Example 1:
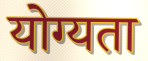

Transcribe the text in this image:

योग्यता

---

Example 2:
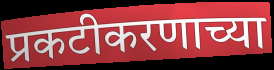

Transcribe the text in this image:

प्रकटीकरणाच्या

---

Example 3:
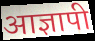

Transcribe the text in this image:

आज्ञापी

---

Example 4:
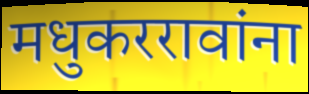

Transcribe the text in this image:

मधुकररावांना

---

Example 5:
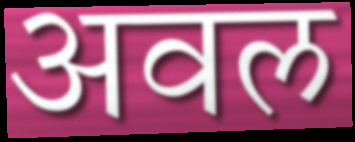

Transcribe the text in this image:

अवल